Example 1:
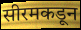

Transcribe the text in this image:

सीरमकडून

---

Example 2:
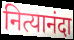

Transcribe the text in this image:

नित्यानंदा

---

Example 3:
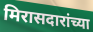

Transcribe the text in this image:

मिरासदारांच्या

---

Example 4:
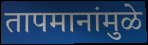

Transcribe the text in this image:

तापमानांमुळे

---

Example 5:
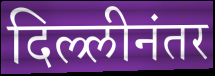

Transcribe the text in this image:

दिल्लीनंतर